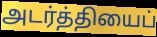
அடர்த்தியைப்